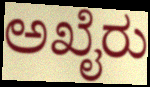
ಅಖೈರು